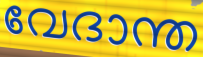
വേദാന്ത